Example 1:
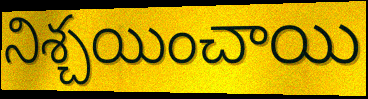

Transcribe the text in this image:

నిశ్చయించాయి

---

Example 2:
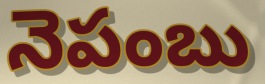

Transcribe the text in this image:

నెపంబు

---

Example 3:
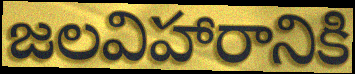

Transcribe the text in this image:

జలవిహారానికి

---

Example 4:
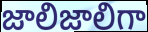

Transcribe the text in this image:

జాలిజాలిగా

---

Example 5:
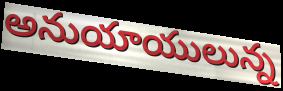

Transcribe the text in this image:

అనుయాయులున్న